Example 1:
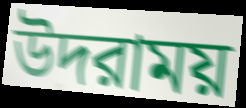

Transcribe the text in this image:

উদরাময়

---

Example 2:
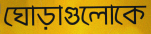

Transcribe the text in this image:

ঘোড়াগুলোকে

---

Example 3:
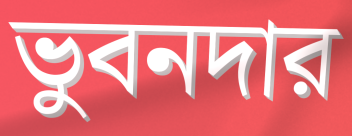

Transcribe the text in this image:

ভুবনদার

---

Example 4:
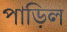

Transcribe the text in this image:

পাড়িল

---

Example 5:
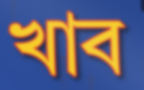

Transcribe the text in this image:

খাব